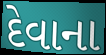
દેવાના